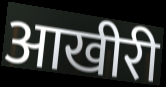
आखीरी